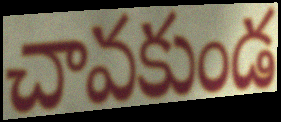
చావకుండ